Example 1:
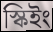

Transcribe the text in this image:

স্কিইং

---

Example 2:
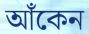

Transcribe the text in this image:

আঁকেন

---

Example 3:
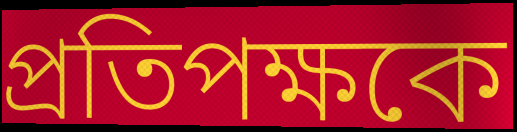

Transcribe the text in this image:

প্রতিপক্ষকে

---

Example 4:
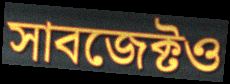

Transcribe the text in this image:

সাবজেক্টও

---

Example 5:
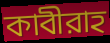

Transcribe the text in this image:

কাবীরাহ